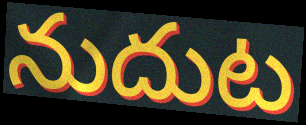
నుదుట